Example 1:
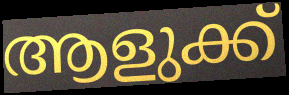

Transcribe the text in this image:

ആളുക്ക്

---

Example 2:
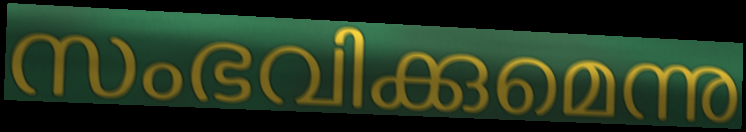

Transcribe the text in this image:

സംഭവിക്കുമെന്നു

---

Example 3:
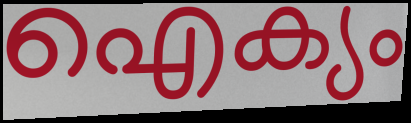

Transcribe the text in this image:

ഐക്യം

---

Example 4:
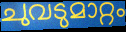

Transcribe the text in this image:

ചുവടുമാറ്റം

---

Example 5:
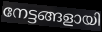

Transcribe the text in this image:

നേട്ടങ്ങളായി